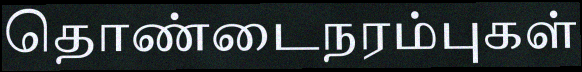
தொண்டைநரம்புகள்